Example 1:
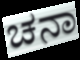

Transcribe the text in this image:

ಚನಾ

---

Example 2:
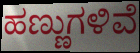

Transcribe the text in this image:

ಹಣ್ಣುಗಳಿವೆ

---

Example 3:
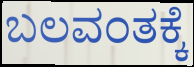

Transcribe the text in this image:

ಬಲವಂತಕ್ಕೆ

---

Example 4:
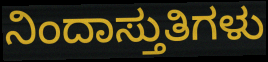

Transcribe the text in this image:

ನಿಂದಾಸ್ತುತಿಗಳು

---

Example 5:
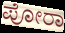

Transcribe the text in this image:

ಪೋರಾ